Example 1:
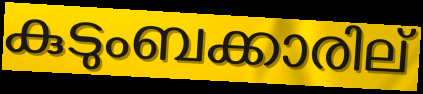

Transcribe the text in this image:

കുടുംബക്കാരില്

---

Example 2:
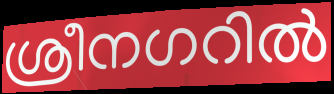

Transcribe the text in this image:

ശ്രീനഗറിൽ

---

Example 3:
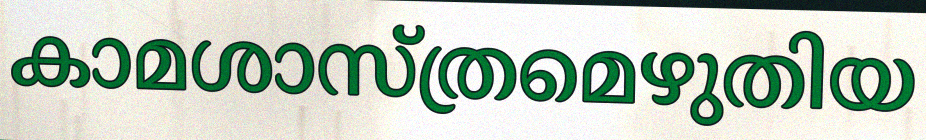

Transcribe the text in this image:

കാമശാസ്ത്രമെഴുതിയ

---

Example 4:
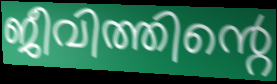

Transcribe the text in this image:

ജീവിത്തിന്റെ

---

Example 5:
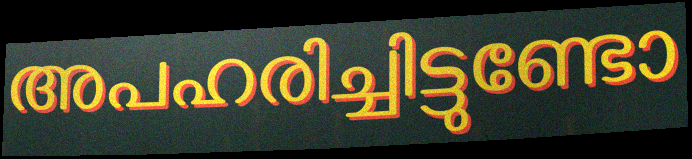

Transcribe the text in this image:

അപഹരിച്ചിട്ടുണ്ടോ